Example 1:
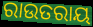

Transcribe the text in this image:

ରାଉତରାୟ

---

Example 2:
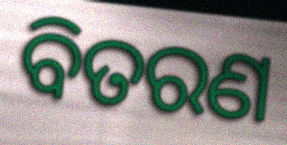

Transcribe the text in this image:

ବିତରଣ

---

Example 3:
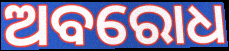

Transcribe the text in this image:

ଅବରୋଧ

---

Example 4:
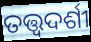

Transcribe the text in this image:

ତତ୍ତ୍ଵଦର୍ଶୀ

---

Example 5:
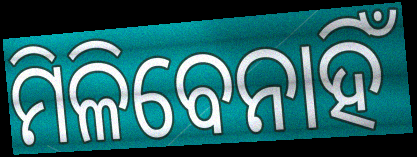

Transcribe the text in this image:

ମିଳିବେନାହିଁ